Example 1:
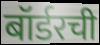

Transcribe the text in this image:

बॉर्डरची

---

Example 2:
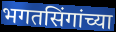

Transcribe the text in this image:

भगतसिंगांच्या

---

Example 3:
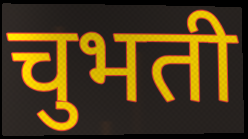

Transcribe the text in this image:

चुभती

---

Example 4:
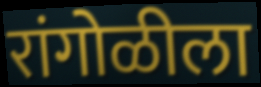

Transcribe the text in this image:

रांगोळीला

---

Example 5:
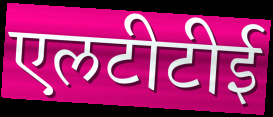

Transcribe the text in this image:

एलटीटीई